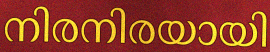
നിരനിരയായി